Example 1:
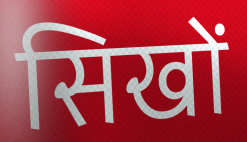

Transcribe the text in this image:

सिखों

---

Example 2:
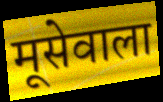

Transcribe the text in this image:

मूसेवाला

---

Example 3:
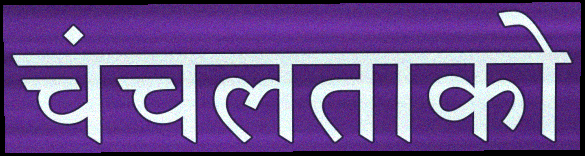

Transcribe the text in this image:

चंचलताको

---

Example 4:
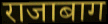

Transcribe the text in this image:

राजाबाग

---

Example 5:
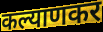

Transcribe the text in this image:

कल्याणकर